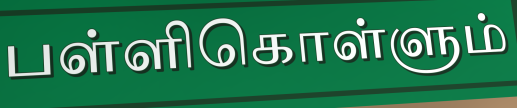
பள்ளிகொள்ளும்